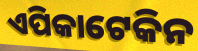
ଏପିକାଟେକିନ